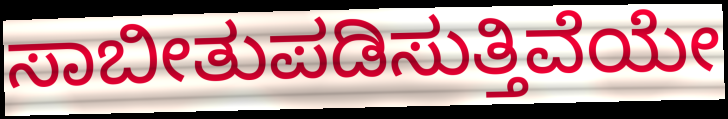
ಸಾಬೀತುಪಡಿಸುತ್ತಿವೆಯೇ